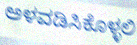
ಅಳವಡಿಸಿಕೊಳ್ಳಲಿ